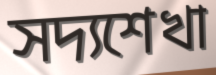
সদ্যশেখা